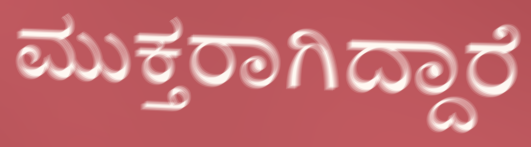
ಮುಕ್ತರಾಗಿದ್ದಾರೆ